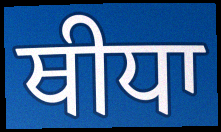
ਥੀਧਾ